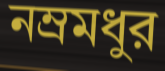
নম্রমধুর